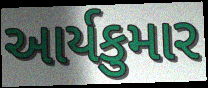
આર્યકુમાર